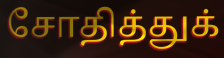
சோதித்துக்